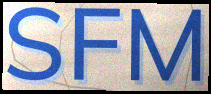
SFM